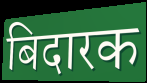
बिदारक